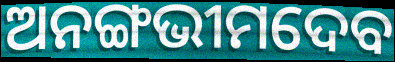
ଅନଙ୍ଗଭୀମଦେବ